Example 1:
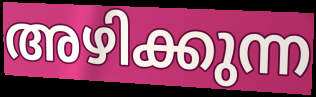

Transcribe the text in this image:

അഴിക്കുന്ന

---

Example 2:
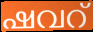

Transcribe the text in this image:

ഷവറ്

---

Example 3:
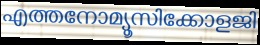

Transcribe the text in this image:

എത്തനോമ്യൂസിക്കോളജി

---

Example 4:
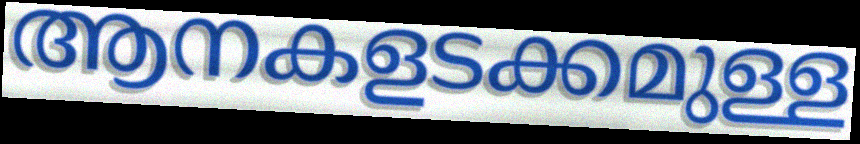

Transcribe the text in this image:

ആനകളടക്കമുള്ള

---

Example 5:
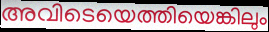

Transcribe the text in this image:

അവിടെയെത്തിയെങ്കിലും